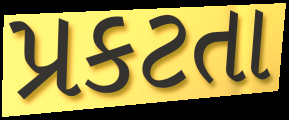
પ્રકટતા